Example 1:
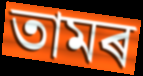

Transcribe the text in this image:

তামৰ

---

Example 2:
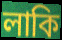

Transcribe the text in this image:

লাকি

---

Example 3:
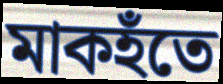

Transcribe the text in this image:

মাকহঁতে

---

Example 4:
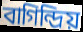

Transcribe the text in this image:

বাগিন্দ্ৰিয়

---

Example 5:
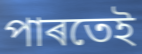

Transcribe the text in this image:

পাৰতেই